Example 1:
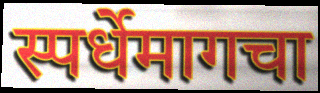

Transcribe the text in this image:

स्पर्धेमागचा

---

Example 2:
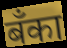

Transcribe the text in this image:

बॅंका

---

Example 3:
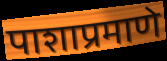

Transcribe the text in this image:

पाशाप्रमाणे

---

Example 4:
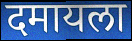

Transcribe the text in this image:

दमायला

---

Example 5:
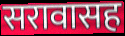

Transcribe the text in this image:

सरावासह